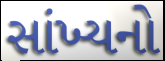
સાંખ્યનો